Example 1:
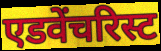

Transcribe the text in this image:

एडवेंचरिस्ट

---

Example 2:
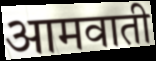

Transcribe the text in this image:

आमवाती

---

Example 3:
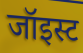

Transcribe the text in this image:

जॉइस्ट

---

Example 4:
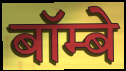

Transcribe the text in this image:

बॉम्‍बे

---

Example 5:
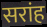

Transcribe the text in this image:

सरांह